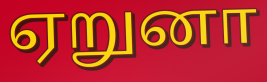
ஏறுனா